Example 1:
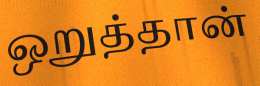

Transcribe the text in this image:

ஒறுத்தான்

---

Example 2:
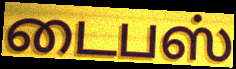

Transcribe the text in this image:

டைபஸ்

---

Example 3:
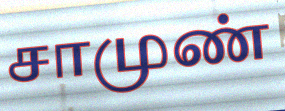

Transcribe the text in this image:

சாமுண்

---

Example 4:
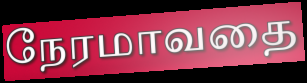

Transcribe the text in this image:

நேரமாவதை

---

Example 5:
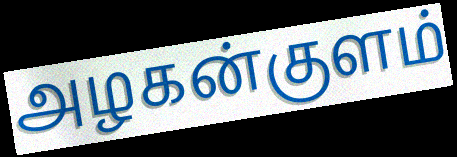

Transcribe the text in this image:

அழகன்குளம்